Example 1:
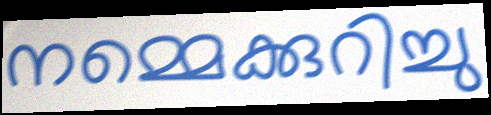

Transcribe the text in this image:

നമ്മെക്കുറിച്ചു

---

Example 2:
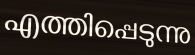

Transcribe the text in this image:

എത്തിപ്പെടുന്നു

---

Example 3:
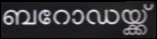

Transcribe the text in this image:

ബറോഡയ്ക്ക്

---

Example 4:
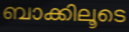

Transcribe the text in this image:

ബാക്കിലൂടെ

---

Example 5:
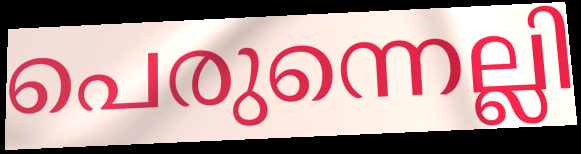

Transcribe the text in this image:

പെരുന്നെല്ലി